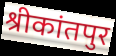
श्रीकांतपुर